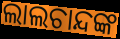
ଲାଲଚାନ୍ଦଙ୍କ